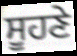
ਸੂਹਣੇ